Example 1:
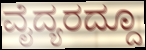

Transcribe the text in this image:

ವೈದ್ಯರದ್ದೂ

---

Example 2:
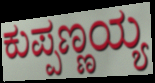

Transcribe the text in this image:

ಕುಪ್ಪಣ್ಣಯ್ಯ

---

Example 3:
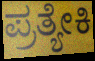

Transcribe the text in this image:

ಪ್ರತ್ಯೇಕಿ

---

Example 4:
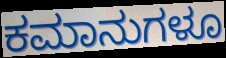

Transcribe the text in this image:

ಕಮಾನುಗಳೂ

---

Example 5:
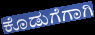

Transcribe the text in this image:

ಕೊಡುಗೆಗಾಗಿ